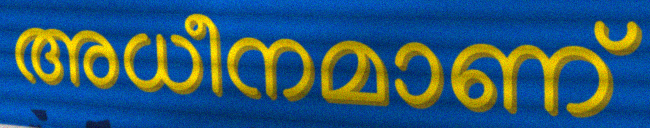
അധീനമാണ്